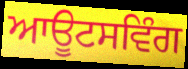
ਆਊਟਸਵਿੰਗ